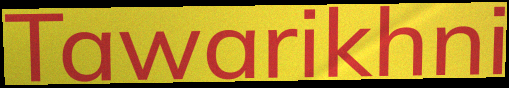
Tawarikhni